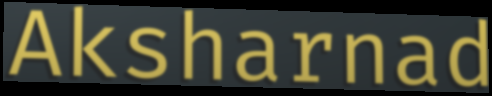
Aksharnad